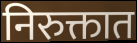
निरुक्तात